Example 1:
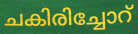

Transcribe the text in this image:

ചകിരിച്ചോറ്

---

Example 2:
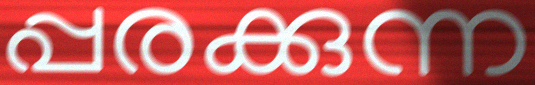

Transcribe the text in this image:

പ്പരക്കുന്ന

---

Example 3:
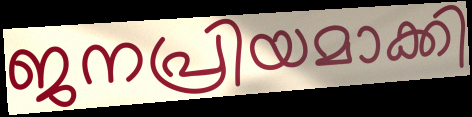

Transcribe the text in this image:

ജനപ്രിയമാക്കി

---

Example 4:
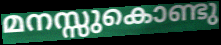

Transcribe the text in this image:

മനസ്സുകൊണ്ടു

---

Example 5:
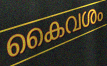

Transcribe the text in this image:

കൈവശം